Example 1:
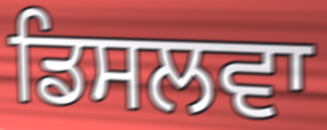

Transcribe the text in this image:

ਡਿਸਲਵਾ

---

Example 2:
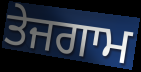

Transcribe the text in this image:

ਤੇਜਗਾਮ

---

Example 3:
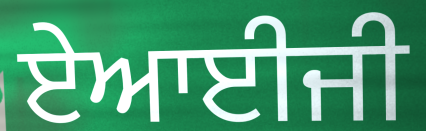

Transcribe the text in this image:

ਏਆਈਜੀ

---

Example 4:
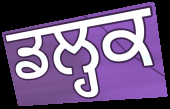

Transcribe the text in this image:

ਡਲ੍ਹਕ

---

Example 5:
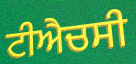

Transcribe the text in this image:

ਟੀਐਚਸੀ